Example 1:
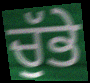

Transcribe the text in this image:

ਚੁੱਭੇ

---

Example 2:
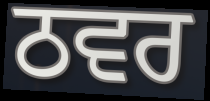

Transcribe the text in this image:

ਠਵਰ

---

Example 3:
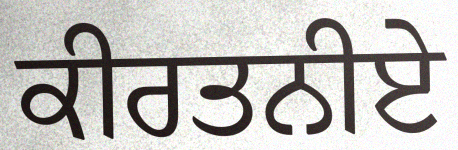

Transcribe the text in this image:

ਕੀਰਤਨੀਏ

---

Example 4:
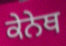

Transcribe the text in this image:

ਕੇਨੇਥ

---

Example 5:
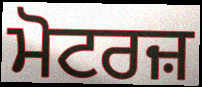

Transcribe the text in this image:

ਮੋਟਰਜ਼